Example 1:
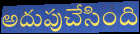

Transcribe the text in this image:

అదుపుచేసింది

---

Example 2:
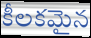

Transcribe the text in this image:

కీలకమైన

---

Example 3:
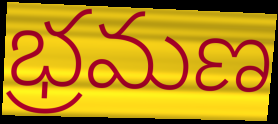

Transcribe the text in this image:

భ్రమణ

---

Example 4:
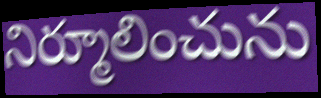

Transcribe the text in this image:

నిర్మూలించును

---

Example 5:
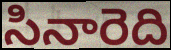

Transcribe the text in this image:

సినారెది